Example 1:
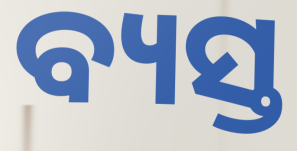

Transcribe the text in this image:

ବ୍ୟସ୍ତ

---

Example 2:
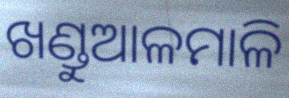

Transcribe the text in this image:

ଖଣ୍ଡୁଆଳମାଳି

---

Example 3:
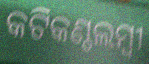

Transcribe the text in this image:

କଟିକଣ୍ଠଲମ୍ବୀ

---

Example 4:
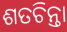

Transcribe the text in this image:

ଶତଚିନ୍ତା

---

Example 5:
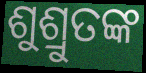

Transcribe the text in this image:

ଶୁଶ୍ରୁତଙ୍କ